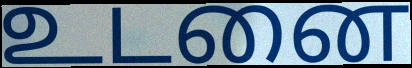
உடனை